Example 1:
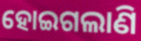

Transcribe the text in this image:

ହୋଇଗଲାଣି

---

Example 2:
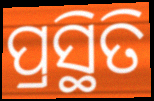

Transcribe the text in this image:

ପ୍ରସ୍ଥିତି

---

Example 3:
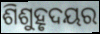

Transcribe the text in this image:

ଶିଶୁହୃଦୟର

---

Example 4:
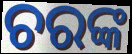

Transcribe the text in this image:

ଚରଙ୍କ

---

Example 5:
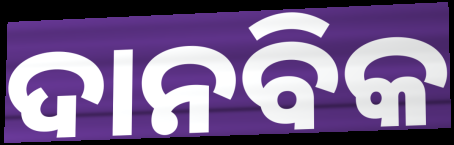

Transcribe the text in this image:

ଦାନବିକ